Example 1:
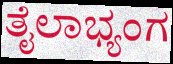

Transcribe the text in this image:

ತೈಲಾಭ್ಯಂಗ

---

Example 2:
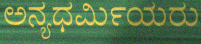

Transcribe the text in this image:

ಅನ್ಯಧರ್ಮಿಯರು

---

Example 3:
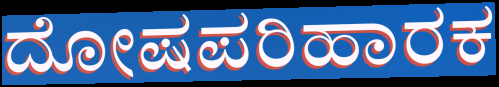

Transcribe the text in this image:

ದೋಷಪರಿಹಾರಕ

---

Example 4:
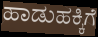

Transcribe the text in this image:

ಹಾಡುಹಕ್ಕಿಗೆ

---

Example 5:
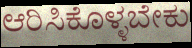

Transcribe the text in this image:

ಆರಿಸಿಕೊಳ್ಳಬೇಕು